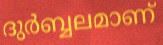
ദുർബ്ബലമാണ്